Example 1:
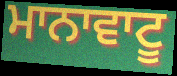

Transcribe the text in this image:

ਮਾਨਾਵਾਟੂ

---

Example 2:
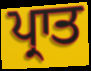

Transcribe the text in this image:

ਪ੍ਰਾਤ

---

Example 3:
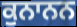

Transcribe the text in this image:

ਕੁਨਾਨਨ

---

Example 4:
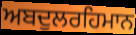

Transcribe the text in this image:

ਅਬਦੁਲਰਹਿਮਾਨ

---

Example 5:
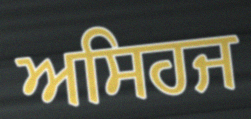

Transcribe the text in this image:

ਅਸਿਹਜ